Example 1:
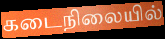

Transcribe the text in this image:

கடைநிலையில்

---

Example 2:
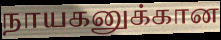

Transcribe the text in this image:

நாயகனுக்கான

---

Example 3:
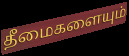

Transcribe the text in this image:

தீமைகளையும்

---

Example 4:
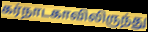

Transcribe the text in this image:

கர்நாடகாவிலிருந்து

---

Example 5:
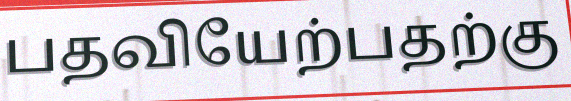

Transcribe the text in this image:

பதவியேற்பதற்கு